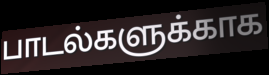
பாடல்களுக்காக